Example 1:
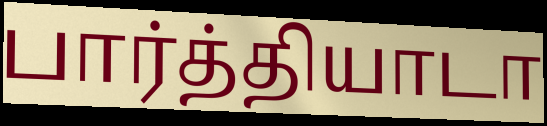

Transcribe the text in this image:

பார்த்தியாடா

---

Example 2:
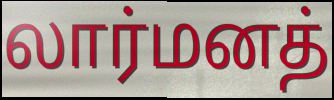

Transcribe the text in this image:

லார்மனத்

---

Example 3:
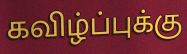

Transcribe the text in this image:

கவிழ்ப்புக்கு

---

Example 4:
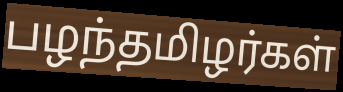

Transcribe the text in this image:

பழந்தமிழர்கள்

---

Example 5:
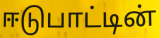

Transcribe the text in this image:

ஈடுபாட்டின்